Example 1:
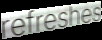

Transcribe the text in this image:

refreshes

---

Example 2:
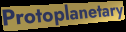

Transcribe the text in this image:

Protoplanetary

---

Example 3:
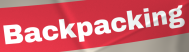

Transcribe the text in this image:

Backpacking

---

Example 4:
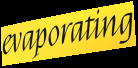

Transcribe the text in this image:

evaporating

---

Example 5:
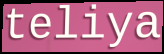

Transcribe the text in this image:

teliya